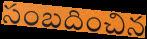
సంబదించిన